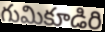
గుమికూడిరి